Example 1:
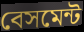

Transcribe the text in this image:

বেসমেন্ট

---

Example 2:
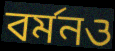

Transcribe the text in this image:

বর্মনও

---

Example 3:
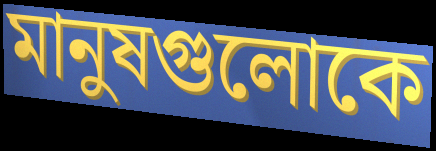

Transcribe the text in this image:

মানুষগুলোকে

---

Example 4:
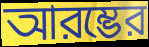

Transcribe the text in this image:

আরম্ভের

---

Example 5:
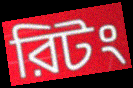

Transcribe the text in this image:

রিটং